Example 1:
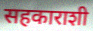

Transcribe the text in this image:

सहकाराशी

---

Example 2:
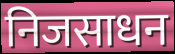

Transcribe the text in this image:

निजसाधन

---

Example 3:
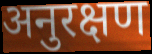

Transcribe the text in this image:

अनुरक्षण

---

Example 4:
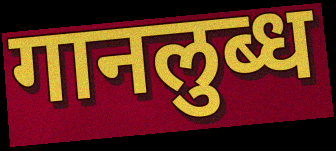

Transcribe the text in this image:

गानलुब्ध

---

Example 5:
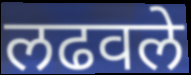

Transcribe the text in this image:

लढवले